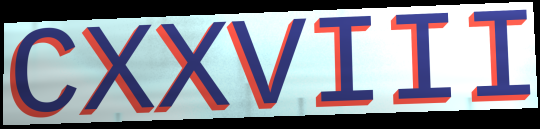
CXXVIII